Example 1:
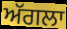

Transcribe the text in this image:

ਅੱਗਲਾ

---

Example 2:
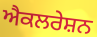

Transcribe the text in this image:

ਐਕਲਰੇਸ਼ਨ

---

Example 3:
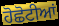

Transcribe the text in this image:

ਹੋਛੋਟੀਆਂ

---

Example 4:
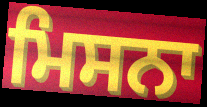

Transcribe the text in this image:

ਮਿਸਨਾ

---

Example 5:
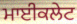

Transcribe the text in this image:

ਮਾਈਕਲੇਟ